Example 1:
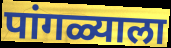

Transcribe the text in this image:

पांगळ्याला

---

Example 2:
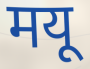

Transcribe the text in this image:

मयू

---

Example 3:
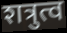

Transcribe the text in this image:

शत्रुत्व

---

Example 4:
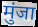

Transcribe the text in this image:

मुंजा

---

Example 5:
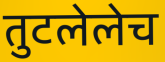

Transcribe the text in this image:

तुटलेलेच